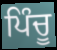
ਪਿੰਚੂ